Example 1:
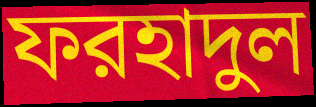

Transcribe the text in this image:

ফরহাদুল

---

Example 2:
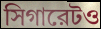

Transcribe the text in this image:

সিগারেটও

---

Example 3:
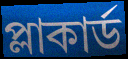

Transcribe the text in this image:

প্লাকার্ড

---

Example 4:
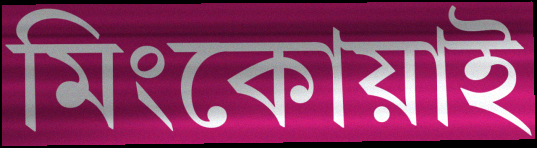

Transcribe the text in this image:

মিংকোয়াই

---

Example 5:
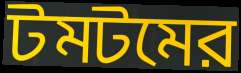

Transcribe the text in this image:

টমটমের